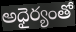
అధైర్యంతో